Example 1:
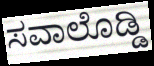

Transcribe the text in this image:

ಸವಾಲೊಡ್ಡಿ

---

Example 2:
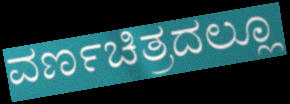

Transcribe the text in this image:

ವರ್ಣಚಿತ್ರದಲ್ಲೂ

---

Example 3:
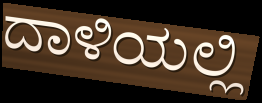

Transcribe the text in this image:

ದಾಳಿಯಲ್ಲಿ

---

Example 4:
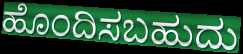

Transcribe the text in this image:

ಹೊಂದಿಸಬಹುದು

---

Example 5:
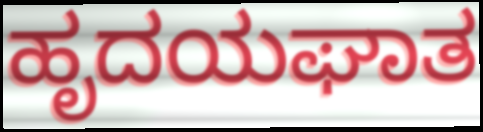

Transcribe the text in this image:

ಹೃದಯಘಾತ